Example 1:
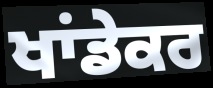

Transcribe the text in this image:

ਖਾਂਡੇਕਰ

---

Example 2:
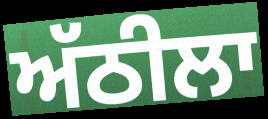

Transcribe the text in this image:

ਅੱਠੀਲਾ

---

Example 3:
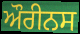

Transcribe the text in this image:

ਔਰੀਨਸ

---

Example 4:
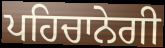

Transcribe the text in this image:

ਪਹਿਚਾਨੇਗੀ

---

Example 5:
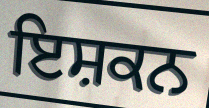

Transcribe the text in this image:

ਇਸ਼ਕਨ